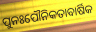
ପୁନଃପୌନିକତାବାର୍ଷିକ